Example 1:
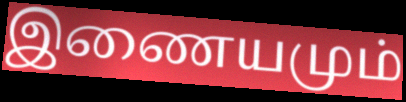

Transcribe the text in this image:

இணையமும்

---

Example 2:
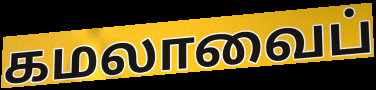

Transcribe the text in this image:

கமலாவைப்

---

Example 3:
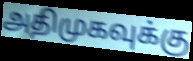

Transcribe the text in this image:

அதிமுகவுக்கு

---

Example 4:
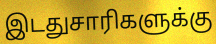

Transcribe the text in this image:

இடதுசாரிகளுக்கு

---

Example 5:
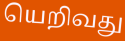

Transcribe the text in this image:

யெறிவது